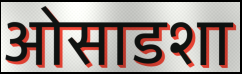
ओसाडशा